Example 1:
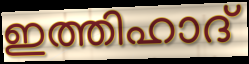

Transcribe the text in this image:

ഇത്തിഹാദ്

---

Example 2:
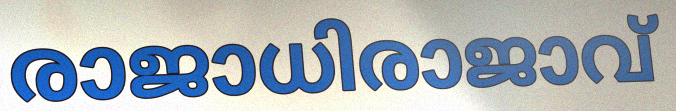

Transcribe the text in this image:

രാജാധിരാജാവ്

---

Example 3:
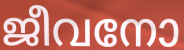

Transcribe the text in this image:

ജീവനോ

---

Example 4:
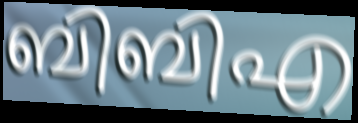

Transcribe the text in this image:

ബിബിഎ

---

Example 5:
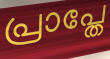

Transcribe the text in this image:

പ്രാപ്തേ